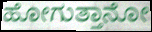
ಹೋಗುತ್ತಾನೋ